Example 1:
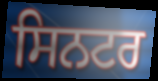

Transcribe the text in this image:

ਸਿਨਟਰ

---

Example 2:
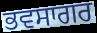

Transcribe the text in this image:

ਭਵਸਾਗਰ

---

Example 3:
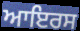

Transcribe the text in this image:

ਆਇਰਸ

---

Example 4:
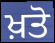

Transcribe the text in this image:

ਖ਼ਤੋ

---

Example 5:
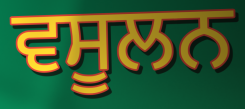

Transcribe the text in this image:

ਵਸੂਲਨ